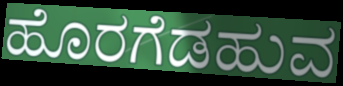
ಹೊರಗೆಡಹುವ